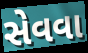
સેવવા